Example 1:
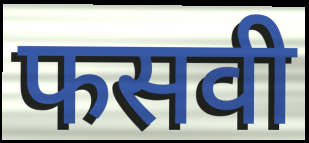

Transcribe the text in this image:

फसवी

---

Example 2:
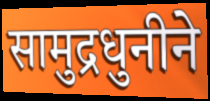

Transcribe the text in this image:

सामुद्रधुनीने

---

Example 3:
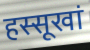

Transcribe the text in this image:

हस्सूखां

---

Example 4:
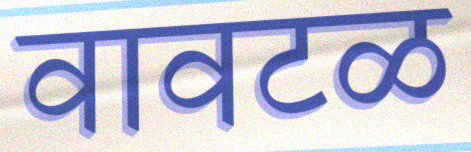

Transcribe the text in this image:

वावटळ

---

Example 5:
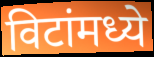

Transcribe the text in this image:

विटांमध्ये